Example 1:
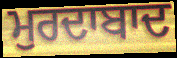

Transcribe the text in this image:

ਮੁਰਦਾਬਾਦ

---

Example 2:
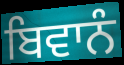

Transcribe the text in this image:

ਬਿਵਾਨੰ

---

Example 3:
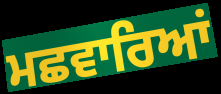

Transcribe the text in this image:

ਮਛਵਾਰਿਆਂ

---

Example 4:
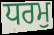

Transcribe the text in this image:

ਧਰਮੁ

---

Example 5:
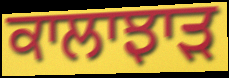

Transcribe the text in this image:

ਕਾਲਾਝਾਡ਼